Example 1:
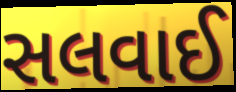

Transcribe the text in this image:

સલવાઈ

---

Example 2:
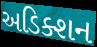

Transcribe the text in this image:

અડિક્શન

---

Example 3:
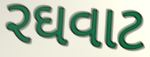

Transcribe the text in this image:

રઘવાટ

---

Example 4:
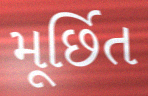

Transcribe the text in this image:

મૂર્છિત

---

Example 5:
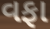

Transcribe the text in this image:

વફા